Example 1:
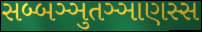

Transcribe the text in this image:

સબ્બઞ્ઞુતઞ્ઞાણસ્સ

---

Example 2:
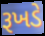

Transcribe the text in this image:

રૂખડે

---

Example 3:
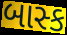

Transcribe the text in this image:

બાસ્ક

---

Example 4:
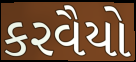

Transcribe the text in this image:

કરવૈયો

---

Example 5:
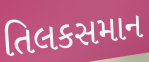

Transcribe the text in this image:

તિલકસમાન